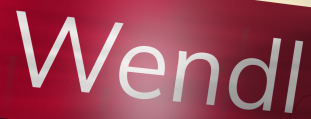
Wendl